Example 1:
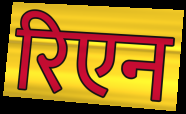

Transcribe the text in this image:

रिएन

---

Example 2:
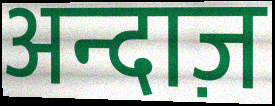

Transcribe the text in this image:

अन्दाज़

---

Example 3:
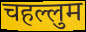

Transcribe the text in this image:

चहल्लुम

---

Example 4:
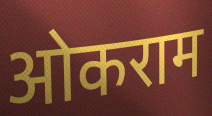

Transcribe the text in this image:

ओकराम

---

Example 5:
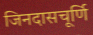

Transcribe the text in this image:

जिनदासचूर्णि